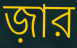
জ়ার